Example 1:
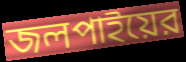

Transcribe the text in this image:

জলপাইয়ের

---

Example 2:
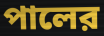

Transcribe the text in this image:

পালের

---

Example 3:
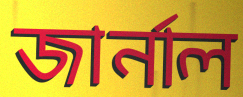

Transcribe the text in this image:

জার্নাল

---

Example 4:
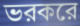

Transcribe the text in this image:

ভরকরে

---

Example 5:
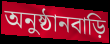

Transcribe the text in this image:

অনুষ্ঠানবাড়ি